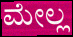
ಮೇಲ್ಲ